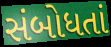
સંબોધતાં